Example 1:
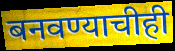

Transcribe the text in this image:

बनवण्याचीही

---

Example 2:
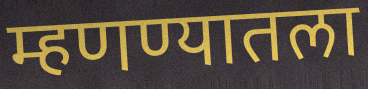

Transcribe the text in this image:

म्हणण्यातला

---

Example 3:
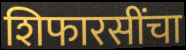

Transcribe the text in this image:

शिफारसींचा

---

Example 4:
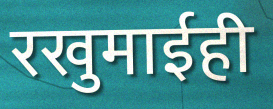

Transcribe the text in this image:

रखुमाईही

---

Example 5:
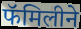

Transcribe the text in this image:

फॅमिलीने